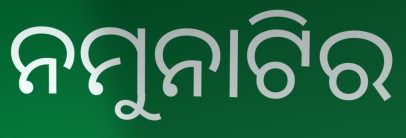
ନମୁନାଟିର